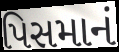
પિસમાનં